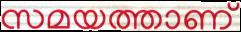
സമയത്താണ്